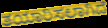
ತಯಾರಿಸಲಾಗಿದೆ